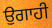
ਉਗਾਹੀ